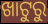
ଖାଟୁରୁ